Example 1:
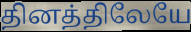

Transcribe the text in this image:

தினத்திலேயே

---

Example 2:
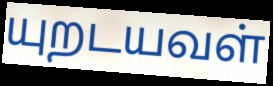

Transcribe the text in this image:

யுறடயவள்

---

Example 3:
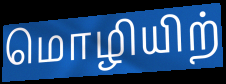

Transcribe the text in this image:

மொழியிற்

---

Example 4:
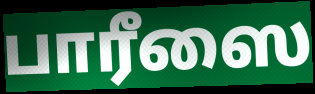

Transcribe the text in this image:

பாரீஸை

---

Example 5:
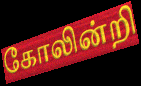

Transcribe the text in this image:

கோலின்றி